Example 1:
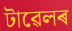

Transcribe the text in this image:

টাৱেলৰ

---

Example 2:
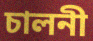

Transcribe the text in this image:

চালনী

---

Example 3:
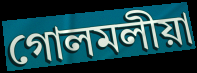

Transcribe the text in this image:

গোলমলীয়া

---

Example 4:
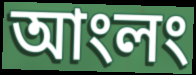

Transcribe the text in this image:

আংলং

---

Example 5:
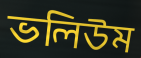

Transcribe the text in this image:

ভলিউম